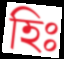
হিঃ